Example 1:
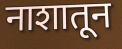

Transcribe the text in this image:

नाशातून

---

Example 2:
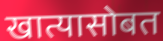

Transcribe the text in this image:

खात्यासोबत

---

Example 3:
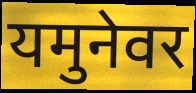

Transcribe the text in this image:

यमुनेवर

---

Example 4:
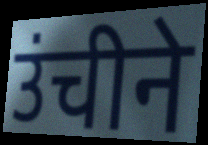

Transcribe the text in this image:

उंचीने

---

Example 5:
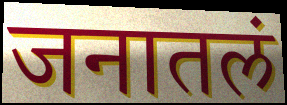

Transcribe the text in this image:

जनातलं